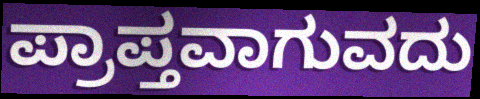
ಪ್ರಾಪ್ತವಾಗುವದು